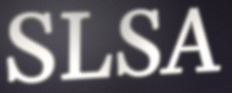
SLSA